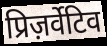
प्रिज़र्वेटिव